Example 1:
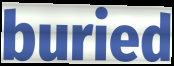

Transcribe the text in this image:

buried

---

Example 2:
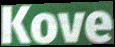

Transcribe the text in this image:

Kove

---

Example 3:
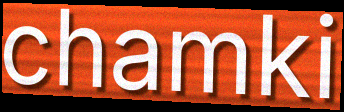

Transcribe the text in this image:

chamki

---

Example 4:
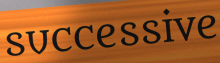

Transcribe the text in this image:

successive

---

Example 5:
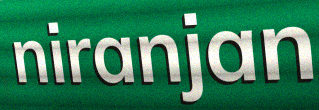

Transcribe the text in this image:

niranjan